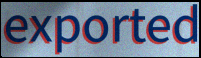
exported